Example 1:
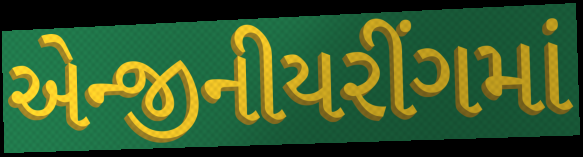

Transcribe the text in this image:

એન્જીનીયરીંગમાં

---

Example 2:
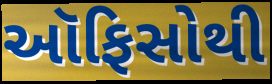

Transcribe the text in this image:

ઑફિસોથી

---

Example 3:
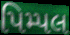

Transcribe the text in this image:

પિમ્પલ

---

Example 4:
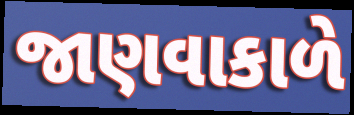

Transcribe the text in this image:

જાણવાકાળે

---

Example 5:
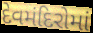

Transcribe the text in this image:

દેવમંદિરોમાં